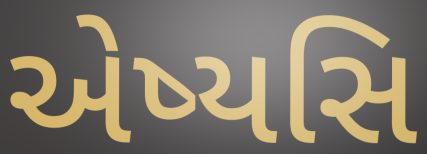
એષ્યસિ